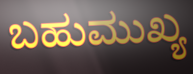
ಬಹುಮುಖ್ಯ